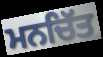
ਮਨਚਿੱਤ